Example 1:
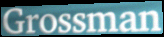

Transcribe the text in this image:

Grossman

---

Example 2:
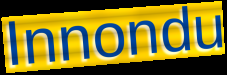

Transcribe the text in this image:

Innondu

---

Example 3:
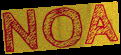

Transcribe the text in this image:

NOA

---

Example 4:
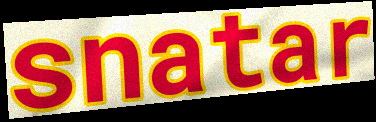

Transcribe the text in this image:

snatar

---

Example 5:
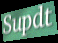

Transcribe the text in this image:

Supdt